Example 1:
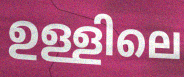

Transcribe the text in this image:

ഉള്ളിലെ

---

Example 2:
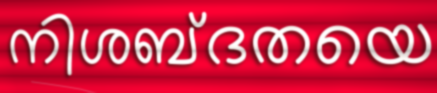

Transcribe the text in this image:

നിശബ്ദതയെ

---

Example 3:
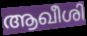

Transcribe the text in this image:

ആഖീശി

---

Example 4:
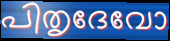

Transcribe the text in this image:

പിതൃദേവോ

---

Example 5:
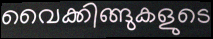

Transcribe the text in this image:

വൈക്കിങ്ങുകളുടെ